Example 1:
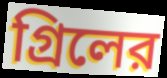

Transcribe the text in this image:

গ্রিলের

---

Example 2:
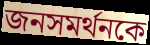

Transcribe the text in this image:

জনসমর্থনকে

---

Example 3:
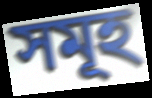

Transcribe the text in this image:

সমূহ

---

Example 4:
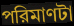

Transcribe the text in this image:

পরিমাণটা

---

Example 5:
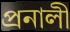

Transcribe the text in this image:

প্রনালী